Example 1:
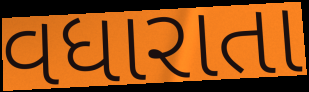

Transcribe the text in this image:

વધારાતા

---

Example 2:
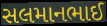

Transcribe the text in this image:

સલમાનભાઈ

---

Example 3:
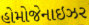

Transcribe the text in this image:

હોમોજેનાઇઝર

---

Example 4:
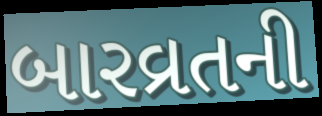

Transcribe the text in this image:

બારવ્રતની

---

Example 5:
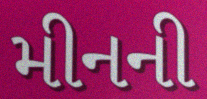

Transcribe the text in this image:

મીનની